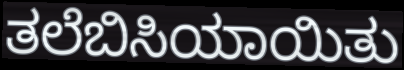
ತಲೆಬಿಸಿಯಾಯಿತು